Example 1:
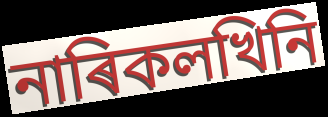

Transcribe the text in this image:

নাৰিকলখিনি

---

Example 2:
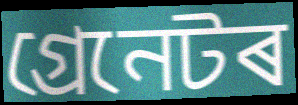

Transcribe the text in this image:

গ্ৰেনেটৰ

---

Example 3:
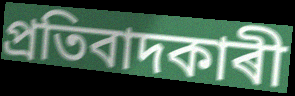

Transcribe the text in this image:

প্ৰতিবাদকাৰী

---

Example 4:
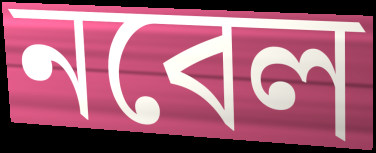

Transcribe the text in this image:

নবেল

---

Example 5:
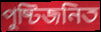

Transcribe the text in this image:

পুষ্টিজনিত